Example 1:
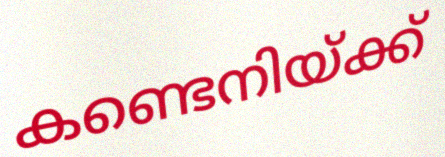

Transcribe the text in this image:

കണ്ടെനിയ്ക്ക്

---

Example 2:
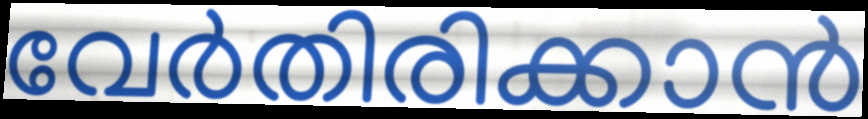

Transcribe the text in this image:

വേർതിരിക്കാൻ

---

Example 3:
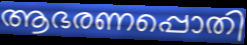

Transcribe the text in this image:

ആഭരണപ്പൊതി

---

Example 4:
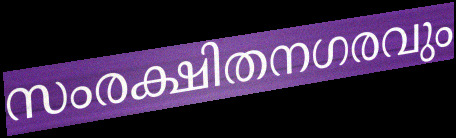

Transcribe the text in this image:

സംരക്ഷിതനഗരവും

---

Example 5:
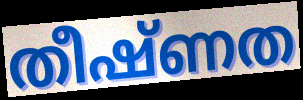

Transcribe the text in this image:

തീഷ്ണത